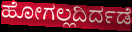
ಹೋಗಲ್ಲದಿರ್ದಡೆ